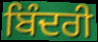
ਬਿੰਦਰੀ